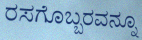
ರಸಗೊಬ್ಬರವನ್ನೂ